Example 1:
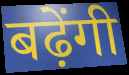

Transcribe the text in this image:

बढ़ेंगी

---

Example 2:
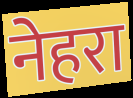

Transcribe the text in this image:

नेहरा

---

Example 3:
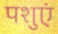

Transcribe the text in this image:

पशुएं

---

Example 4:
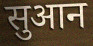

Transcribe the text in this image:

सुआन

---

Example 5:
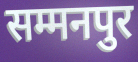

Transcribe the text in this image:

सम्मनपुर